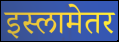
इस्लामेतर